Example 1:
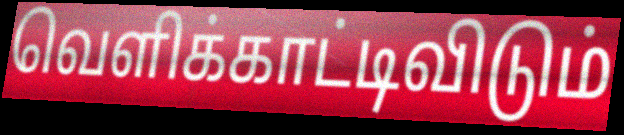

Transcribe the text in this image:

வெளிக்காட்டிவிடும்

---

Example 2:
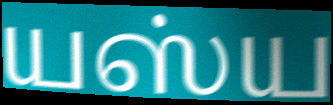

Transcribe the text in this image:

யஸ்ய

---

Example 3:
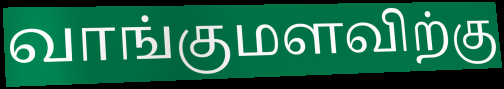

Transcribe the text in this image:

வாங்குமளவிற்கு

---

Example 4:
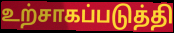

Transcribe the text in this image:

உற்சாகப்படுத்தி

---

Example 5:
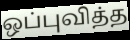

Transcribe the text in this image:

ஒப்புவித்த